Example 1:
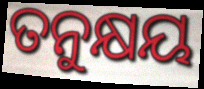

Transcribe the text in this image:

ତନୁକ୍ଷୟ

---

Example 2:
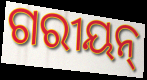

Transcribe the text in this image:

ଗରୀୟନ୍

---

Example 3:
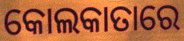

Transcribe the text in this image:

କୋଲକାତାରେ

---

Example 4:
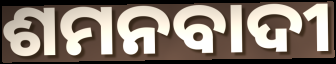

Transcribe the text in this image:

ଶମନବାଦୀ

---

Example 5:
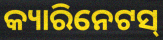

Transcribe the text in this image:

କ୍ୟାରିନେଟସ୍